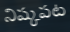
నిష్కపట